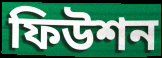
ফিউশন